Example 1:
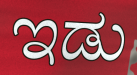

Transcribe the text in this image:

ಇಡು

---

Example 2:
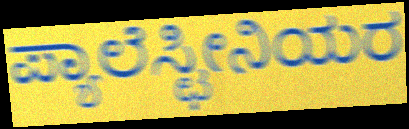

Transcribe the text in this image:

ಪ್ಯಾಲೆಸ್ಟೀನಿಯರ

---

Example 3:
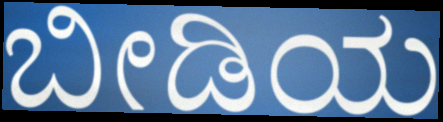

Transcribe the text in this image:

ಬೀಡಿಯ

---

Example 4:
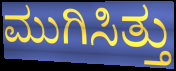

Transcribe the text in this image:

ಮುಗಿಸಿತ್ತು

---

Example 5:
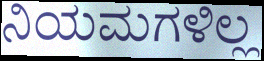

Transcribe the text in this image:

ನಿಯಮಗಳಿಲ್ಲ